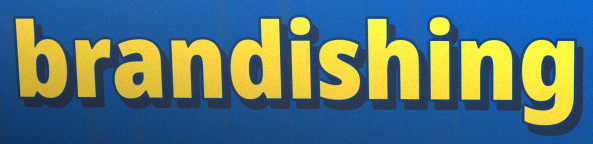
brandishing